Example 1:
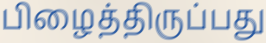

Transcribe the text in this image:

பிழைத்திருப்பது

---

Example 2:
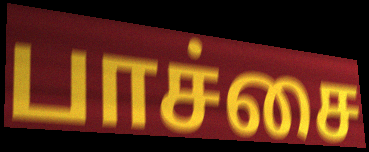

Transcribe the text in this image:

பாச்சை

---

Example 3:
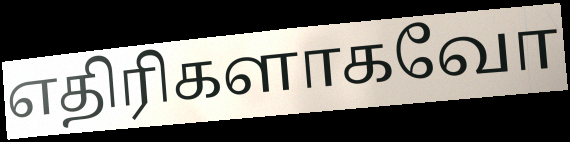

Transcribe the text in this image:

எதிரிகளாகவோ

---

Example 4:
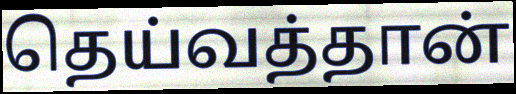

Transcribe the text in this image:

தெய்வத்தான்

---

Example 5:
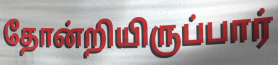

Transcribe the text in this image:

தோன்றியிருப்பார்